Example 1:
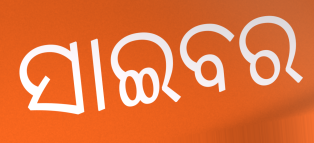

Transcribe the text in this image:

ସାଇବର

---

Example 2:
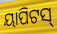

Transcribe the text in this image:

ୟାପିଟସ୍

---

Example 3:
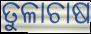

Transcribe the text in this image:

ତୁଳାଚାଷ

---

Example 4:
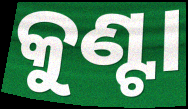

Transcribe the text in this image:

କୁଣ୍ଟା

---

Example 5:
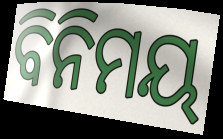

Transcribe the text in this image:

ବିନିମୟ